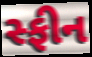
સ્ફીન